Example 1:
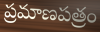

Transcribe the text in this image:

ప్రమాణపత్రం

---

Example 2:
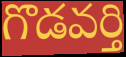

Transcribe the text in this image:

గొడవర్తి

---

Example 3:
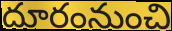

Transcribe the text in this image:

దూరంనుంచి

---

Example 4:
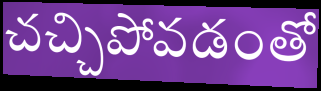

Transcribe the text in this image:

చచ్చిపోవడంతో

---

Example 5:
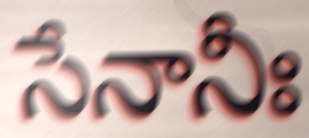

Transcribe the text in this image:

సేనానీః